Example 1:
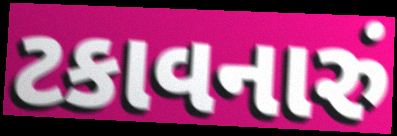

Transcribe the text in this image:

ટકાવનારું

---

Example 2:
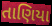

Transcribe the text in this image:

તાણિયા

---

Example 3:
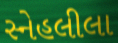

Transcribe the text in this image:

સ્નેહલીલા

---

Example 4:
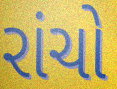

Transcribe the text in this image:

રાંચો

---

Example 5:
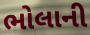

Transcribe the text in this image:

ભોલાની